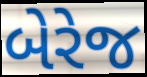
બેરેજ